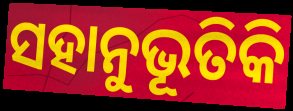
ସହାନୁଭୂତିକି